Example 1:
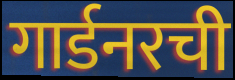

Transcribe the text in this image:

गार्डनरची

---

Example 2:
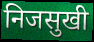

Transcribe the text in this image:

निजसुखी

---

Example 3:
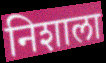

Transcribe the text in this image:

निशाला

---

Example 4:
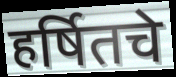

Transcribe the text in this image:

हर्षितचे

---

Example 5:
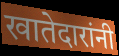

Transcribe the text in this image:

खातेदारांनी